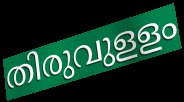
തിരുവുളളം